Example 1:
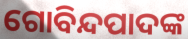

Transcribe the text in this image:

ଗୋବିନ୍ଦପାଦଙ୍କ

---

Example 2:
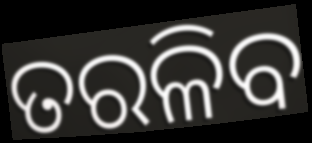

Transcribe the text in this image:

ତରଳିବ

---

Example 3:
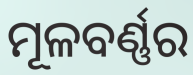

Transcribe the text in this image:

ମୂଳବର୍ଣ୍ଣର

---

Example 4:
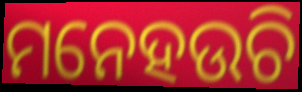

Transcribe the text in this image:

ମନେହଉଚି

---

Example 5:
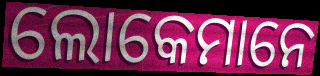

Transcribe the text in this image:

ଲୋକେମାନେ